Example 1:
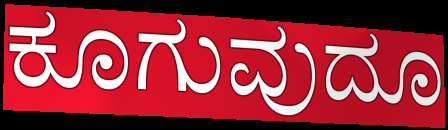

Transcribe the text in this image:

ಕೂಗುವುದೂ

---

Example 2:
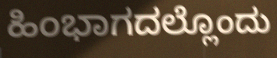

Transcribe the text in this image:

ಹಿಂಭಾಗದಲ್ಲೊಂದು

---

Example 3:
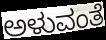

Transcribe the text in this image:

ಅಳುವಂತೆ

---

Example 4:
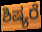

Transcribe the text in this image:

ಶಿಷ್ಯರೆ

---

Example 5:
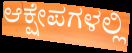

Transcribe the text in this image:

ಆಕ್ಷೇಪಗಳಲ್ಲಿ